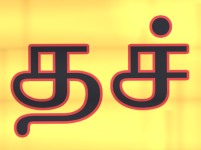
தச்